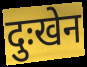
दुःखेन